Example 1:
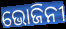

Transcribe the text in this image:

ଭୋଜିନୀ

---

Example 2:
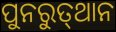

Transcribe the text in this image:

ପୁନରୁତ୍‌ଥାନ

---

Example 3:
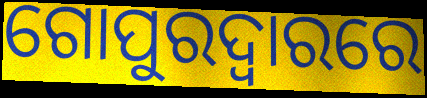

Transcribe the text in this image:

ଗୋପୁରଦ୍ବାରରେ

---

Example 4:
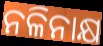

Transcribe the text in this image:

ନଳିନାକ୍ଷ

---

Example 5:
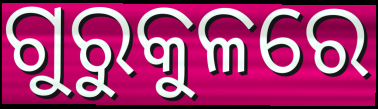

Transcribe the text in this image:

ଗୁରୁକୁଳରେ